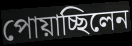
পোয়াচ্ছিলেন